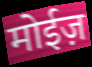
मोईज़